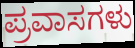
ಪ್ರವಾಸಗಳು